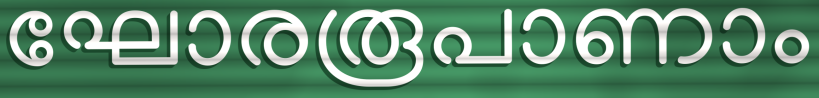
ഘോരരൂപാണാം